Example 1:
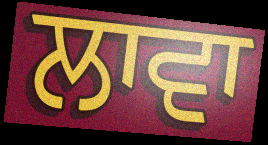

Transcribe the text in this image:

ਲਾਵਾ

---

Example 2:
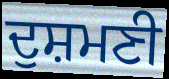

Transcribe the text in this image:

ਦੁਸ਼ਮਣੀ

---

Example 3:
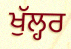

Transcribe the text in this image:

ਖੁੱਲ੍ਹਰ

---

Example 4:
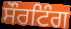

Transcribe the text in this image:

ਸੌਰਟਿੰਗ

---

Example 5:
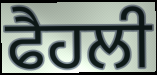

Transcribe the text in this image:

ਫੈਹਲੀ